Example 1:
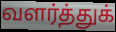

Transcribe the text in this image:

வளர்த்துக்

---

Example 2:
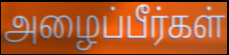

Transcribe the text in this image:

அழைப்பீர்கள்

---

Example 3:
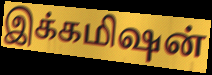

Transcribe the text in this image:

இக்கமிஷன்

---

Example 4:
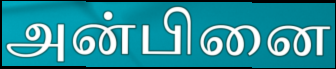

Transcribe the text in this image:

அன்பினை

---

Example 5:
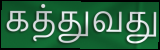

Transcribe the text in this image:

கத்துவது